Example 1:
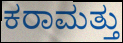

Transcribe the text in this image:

ಕರಾಮತ್ತು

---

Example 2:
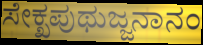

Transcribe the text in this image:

ಸೇಕ್ಖಪುಥುಜ್ಜನಾನಂ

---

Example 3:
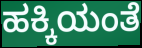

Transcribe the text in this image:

ಹಕ್ಕಿಯಂತೆ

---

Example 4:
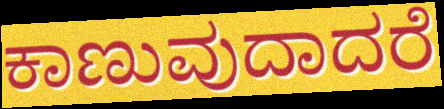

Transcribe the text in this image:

ಕಾಣುವುದಾದರೆ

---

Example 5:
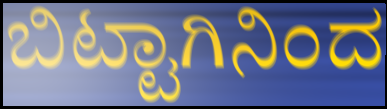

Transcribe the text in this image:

ಬಿಟ್ಟಾಗಿನಿಂದ